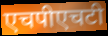
एचपीएचटी